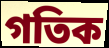
গতিক